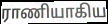
ராணியாகிய